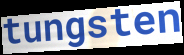
tungsten